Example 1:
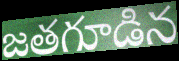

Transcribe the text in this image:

జతగూడిన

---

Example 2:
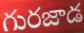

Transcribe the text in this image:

గురజాడ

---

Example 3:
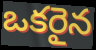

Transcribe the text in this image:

ఒకరైన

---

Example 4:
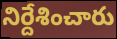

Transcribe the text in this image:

నిర్దేశించారు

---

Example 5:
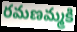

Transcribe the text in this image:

రమణమ్మకి